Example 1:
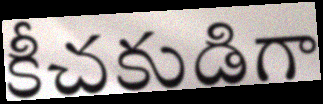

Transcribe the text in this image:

కీచకుడిగా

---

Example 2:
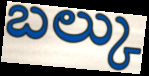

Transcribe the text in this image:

బల్కు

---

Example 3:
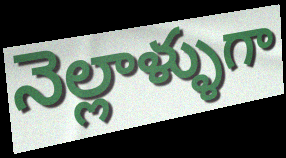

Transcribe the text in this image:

నెల్లాళ్ళుగా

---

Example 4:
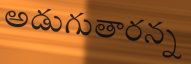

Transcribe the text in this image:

అడుగుతారన్న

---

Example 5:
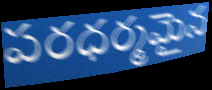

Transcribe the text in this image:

పరధర్మమైన